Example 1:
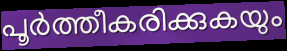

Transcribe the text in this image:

പൂർത്തീകരിക്കുകയും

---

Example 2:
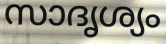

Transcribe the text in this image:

സാദൃശ്യം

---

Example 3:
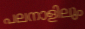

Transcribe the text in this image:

പലനാളിലും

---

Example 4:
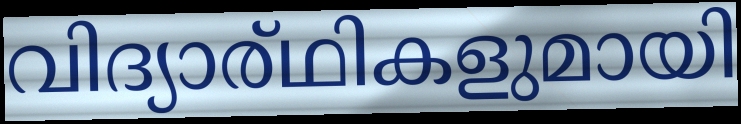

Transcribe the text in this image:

വിദ്യാര്ഥികളുമായി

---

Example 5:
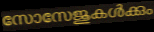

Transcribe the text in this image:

സോസേജുകൾക്കും